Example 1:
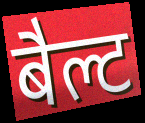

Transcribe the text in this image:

बैल्ट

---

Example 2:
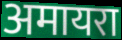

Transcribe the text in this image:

अमायरा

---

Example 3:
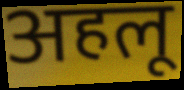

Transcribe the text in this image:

अहलू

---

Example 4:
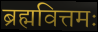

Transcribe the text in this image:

ब्रह्मवित्तमः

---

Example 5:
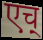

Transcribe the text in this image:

एच्